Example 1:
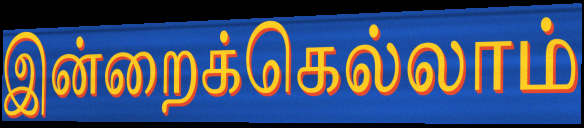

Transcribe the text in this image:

இன்றைக்கெல்லாம்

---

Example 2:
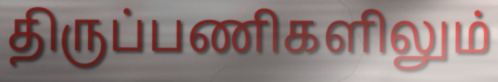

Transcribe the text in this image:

திருப்பணிகளிலும்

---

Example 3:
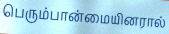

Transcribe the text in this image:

பெரும்பான்மையினரால்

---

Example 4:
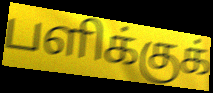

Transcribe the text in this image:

பளிக்குக்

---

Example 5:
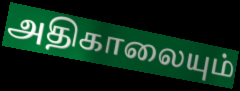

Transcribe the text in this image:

அதிகாலையும்